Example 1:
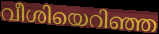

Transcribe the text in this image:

വീശിയെറിഞ്ഞ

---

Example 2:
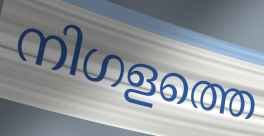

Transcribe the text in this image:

നിഗളത്തെ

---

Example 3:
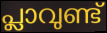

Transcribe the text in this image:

പ്ലാവുണ്ട്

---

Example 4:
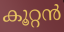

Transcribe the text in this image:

കൂറ്റൻ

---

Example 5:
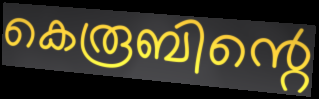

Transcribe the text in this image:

കെരൂബിന്റെ